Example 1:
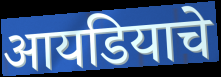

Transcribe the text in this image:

आयडियाचे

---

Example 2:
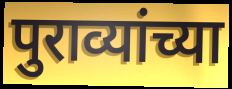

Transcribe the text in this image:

पुराव्यांच्या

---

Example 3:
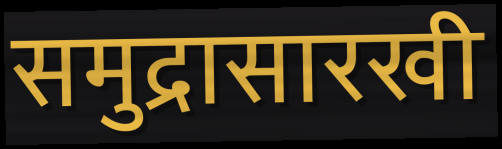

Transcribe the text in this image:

समुद्रासारखी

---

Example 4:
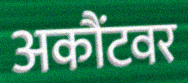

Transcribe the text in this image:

अकौंटवर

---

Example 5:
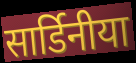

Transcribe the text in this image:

सार्डिनीया